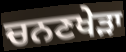
ਚਨਣਖੇੜਾ